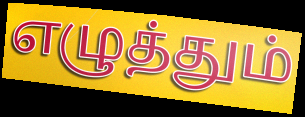
எழுத்தும்